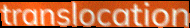
translocation